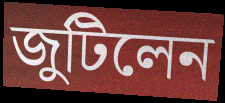
জুটিলেন